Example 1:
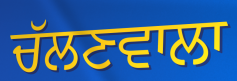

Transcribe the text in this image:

ਚੱਲਣਵਾਲਾ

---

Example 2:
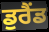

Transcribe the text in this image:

ਡੁਰੈਂਡ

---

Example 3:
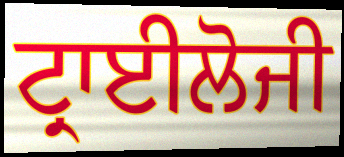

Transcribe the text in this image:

ਟ੍ਰਾਈਲੋਜੀ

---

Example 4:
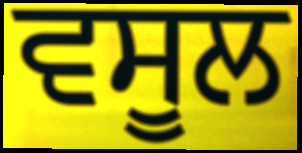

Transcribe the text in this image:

ਵਸੂਲ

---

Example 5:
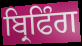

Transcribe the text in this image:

ਬ੍ਰਿਫਿੰਗ